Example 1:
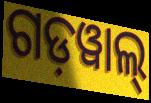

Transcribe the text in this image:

ଗଡ଼ୱାଲ୍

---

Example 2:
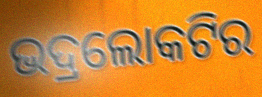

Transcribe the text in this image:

ଭଦ୍ରଲୋକଟିର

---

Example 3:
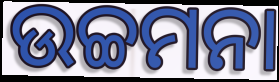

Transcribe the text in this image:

ଉଚ୍ଚମନା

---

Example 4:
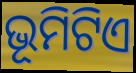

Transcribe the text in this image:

ଭୂମିଟିଏ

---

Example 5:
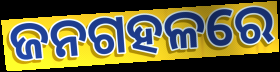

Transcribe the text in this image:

ଜନଗହଳରେ